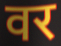
वर